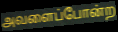
அவளைப்போன்ற